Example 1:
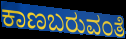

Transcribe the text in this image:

ಕಾಣಬರುವಂತೆ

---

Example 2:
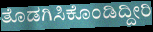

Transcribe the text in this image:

ತೊಡಗಿಸಿಕೊಂಡಿದ್ದೀರಿ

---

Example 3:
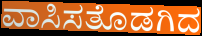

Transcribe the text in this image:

ವಾಸಿಸತೊಡಗಿದ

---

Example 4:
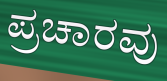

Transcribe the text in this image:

ಪ್ರಚಾರವು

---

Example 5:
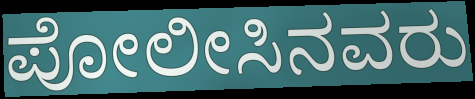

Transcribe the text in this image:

ಪೋಲೀಸಿನವರು